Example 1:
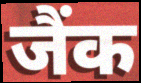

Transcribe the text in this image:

जैंक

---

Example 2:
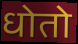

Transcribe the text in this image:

धोतो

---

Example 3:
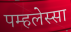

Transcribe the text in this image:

पम्हलेस्सा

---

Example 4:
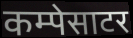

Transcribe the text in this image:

कम्पेसाटर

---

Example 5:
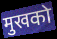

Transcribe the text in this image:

मुखको